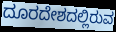
ದೂರದೇಶದಲ್ಲಿರುವ